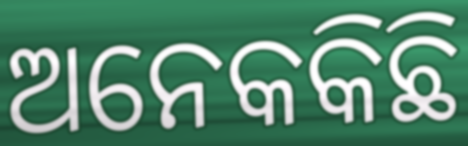
ଅନେକକିଛି